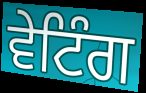
ਵੇਟਿੰਗ